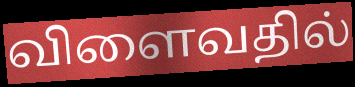
விளைவதில்